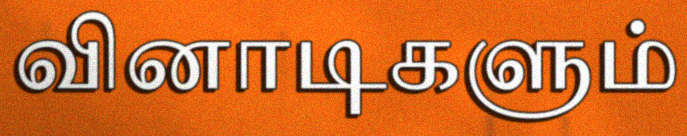
வினாடிகளும்